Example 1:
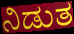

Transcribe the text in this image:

ನಿಡುತ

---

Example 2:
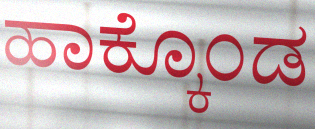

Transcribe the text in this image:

ಹಾಕ್ಕೊಂಡ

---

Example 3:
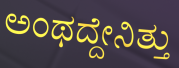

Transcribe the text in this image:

ಅಂಥದ್ದೇನಿತ್ತು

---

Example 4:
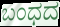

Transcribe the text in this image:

ಬಂಧದ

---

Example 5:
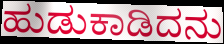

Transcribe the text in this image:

ಹುಡುಕಾಡಿದನು